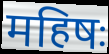
महिषः